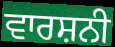
ਵਾਰਸ਼ਨੀ